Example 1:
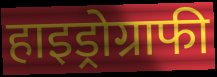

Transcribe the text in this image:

हाइड्रोग्राफी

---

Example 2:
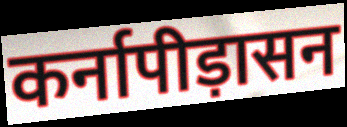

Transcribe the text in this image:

कर्नापीड़ासन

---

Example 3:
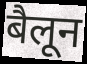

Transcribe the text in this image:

बैलून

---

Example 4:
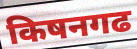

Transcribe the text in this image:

किषनगढ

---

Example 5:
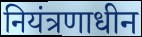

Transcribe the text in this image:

नियंत्रणाधीन